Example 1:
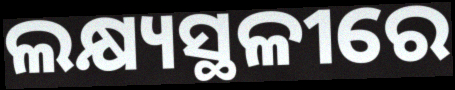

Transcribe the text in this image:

ଲକ୍ଷ୍ୟସ୍ଥଳୀରେ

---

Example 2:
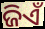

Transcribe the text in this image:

ଜିଏଁ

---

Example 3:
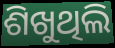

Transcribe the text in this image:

ଶିଖୁଥିଲି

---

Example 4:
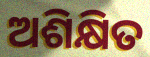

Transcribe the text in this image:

ଅଶିକ୍ଷିତ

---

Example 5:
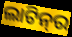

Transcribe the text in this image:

ଲାଟିନ୍‌ର